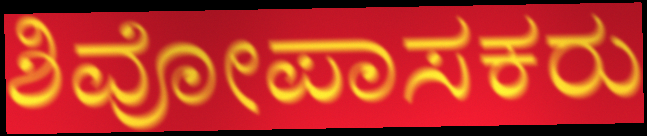
ಶಿವೋಪಾಸಕರು